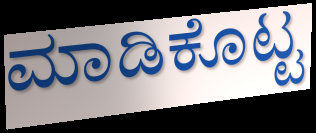
ಮಾಡಿಕೊಟ್ಟ